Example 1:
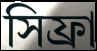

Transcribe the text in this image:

সিফ্রা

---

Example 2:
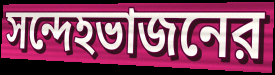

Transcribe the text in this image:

সন্দেহভাজনের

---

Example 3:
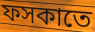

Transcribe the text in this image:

ফসকাতে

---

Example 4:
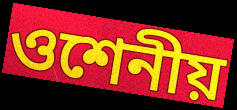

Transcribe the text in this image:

ওশেনীয়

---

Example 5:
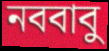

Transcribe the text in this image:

নববাবু